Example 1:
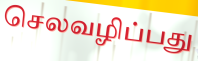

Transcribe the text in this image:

செலவழிப்பது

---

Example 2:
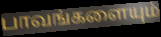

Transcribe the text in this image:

பாவங்களையும்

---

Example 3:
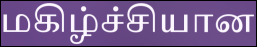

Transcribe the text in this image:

மகிழ்ச்சியான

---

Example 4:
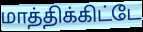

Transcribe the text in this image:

மாத்திக்கிட்டே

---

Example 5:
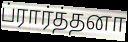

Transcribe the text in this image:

ப்ரார்த்தனா